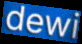
dewi